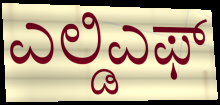
ಎಲ್ಡಿಎಫ್